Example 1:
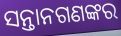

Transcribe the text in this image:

ସନ୍ତାନଗଣଙ୍କର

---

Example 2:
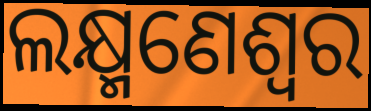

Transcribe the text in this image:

ଲକ୍ଷ୍ମଣେଶ୍ୱର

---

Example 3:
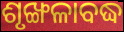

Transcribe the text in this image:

ଶୃଙ୍ଖଳାବଦ୍ଧ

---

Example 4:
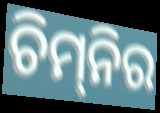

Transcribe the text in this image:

ଚିମ୍‌ନିର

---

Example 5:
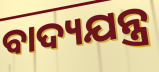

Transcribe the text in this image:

ବାଦ୍ୟଯନ୍ତ୍ର